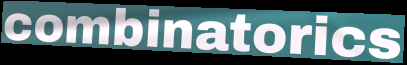
combinatorics